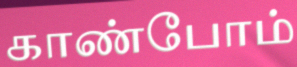
காண்போம்